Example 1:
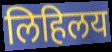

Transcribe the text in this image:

लिहिलय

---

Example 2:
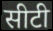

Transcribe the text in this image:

सीटी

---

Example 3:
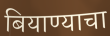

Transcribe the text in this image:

बियाण्याचा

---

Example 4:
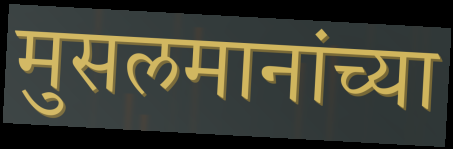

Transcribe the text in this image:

मुसलमानांच्या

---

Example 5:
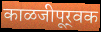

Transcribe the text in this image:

काळजीपूर्वक